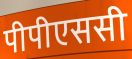
पीपीएससी